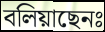
বলিয়াছেনঃ